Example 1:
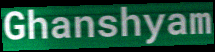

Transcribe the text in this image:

Ghanshyam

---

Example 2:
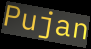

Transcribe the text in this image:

Pujan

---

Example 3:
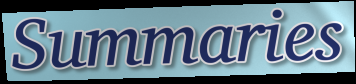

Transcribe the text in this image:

Summaries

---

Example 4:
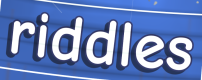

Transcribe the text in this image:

riddles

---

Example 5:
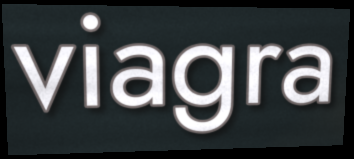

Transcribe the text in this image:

viagra